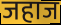
जहाज